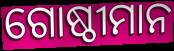
ଗୋଷ୍ଠୀମାନ